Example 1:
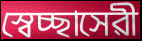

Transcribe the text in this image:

স্বেচ্ছাসেৱী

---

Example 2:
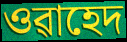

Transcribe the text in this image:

ওৱাহেদ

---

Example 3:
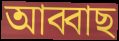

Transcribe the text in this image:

আব্বাছ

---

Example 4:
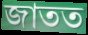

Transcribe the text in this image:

জাতত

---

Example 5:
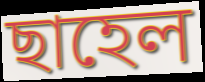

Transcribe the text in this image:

ছাহেল